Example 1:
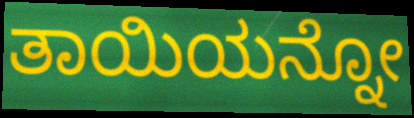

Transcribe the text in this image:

ತಾಯಿಯನ್ನೋ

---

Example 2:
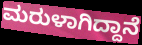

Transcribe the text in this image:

ಮರುಳಾಗಿದ್ದಾನೆ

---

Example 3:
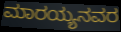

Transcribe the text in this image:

ಮಾರಯ್ಯನವರ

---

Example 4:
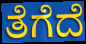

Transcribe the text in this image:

ತೆಗೆದೆ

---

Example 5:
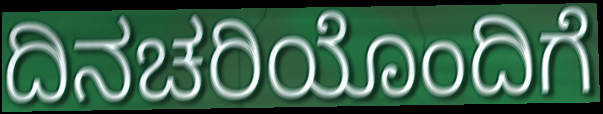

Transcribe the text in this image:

ದಿನಚರಿಯೊಂದಿಗೆ